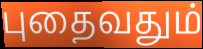
புதைவதும்